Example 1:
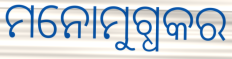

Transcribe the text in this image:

ମନୋମୁଗ୍ଧକର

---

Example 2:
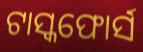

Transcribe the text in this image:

ଟାସ୍କଫୋର୍ସ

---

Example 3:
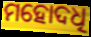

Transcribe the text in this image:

ମହୋଦଧି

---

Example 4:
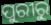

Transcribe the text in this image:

ପୁରୀରୁ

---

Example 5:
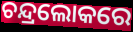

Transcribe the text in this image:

ଚନ୍ଦ୍ରଲୋକରେ